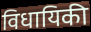
विधायिकी